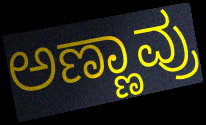
ಅಣ್ಣಾವ್ರು